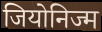
जियोनिज्म